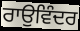
ਰਾਉਵਿੰਦਰ